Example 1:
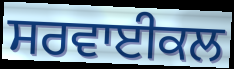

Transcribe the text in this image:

ਸਰਵਾਈਕਲ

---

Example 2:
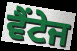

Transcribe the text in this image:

ਵੈਂਟੇਜ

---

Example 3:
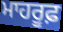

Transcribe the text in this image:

ਮਾਹਰੂਫ਼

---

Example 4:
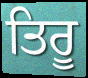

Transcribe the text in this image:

ਤਿਰੂ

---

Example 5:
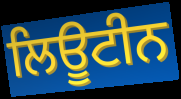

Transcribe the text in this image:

ਲਿਊਟੀਨ